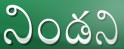
నిండని